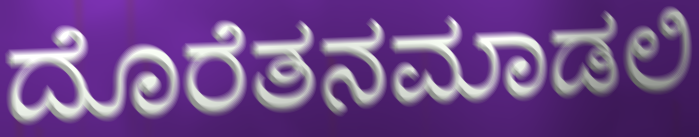
ದೊರೆತನಮಾಡಲಿ